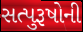
સત્પુરૂષોની